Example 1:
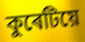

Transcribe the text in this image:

কুৰেটিয়ে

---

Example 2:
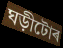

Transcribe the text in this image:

ঘড়ীটোৰ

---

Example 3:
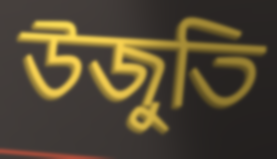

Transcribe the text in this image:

উজুতি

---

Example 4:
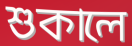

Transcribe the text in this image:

শুকালে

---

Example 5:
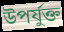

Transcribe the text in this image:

উপৰ্যুক্ত